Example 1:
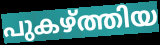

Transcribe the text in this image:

പുകഴ്ത്തിയ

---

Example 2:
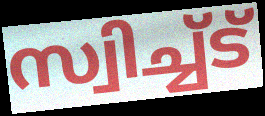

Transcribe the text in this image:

സ്വിച്ച്ട്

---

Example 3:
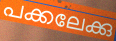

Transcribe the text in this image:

പക്കലേക്കു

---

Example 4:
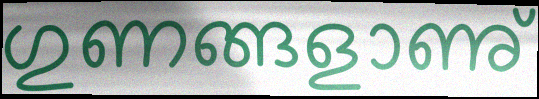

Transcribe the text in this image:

ഗുണങ്ങളാണു്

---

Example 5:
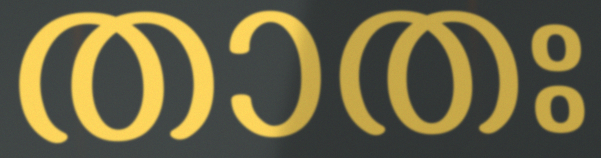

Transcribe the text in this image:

താതഃ